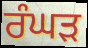
ਰੰਘੜ